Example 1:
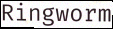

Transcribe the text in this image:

Ringworm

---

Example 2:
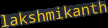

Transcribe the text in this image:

lakshmikanth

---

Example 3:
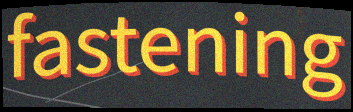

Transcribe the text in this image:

fastening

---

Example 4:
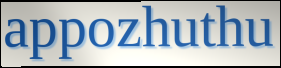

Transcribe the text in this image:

appozhuthu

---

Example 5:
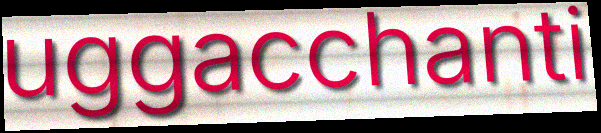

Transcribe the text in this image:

uggacchanti